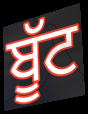
ਬੂੱਟ